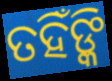
ତହିଁଙ୍କି